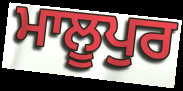
ਮਾਲੂਪੁਰ